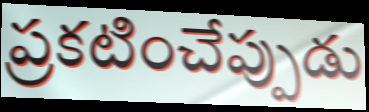
ప్రకటించేప్పుడు